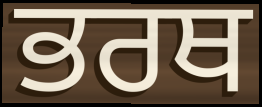
ਭਰਥ